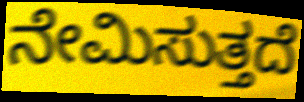
ನೇಮಿಸುತ್ತದೆ